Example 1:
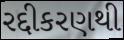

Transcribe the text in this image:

રદ્દીકરણથી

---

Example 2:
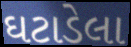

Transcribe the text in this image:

ઘટાડેલા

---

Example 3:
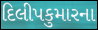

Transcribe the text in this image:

દિલીપકુમારના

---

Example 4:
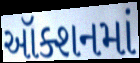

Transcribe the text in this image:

ઑક્શનમાં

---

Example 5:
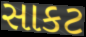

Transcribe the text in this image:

સાકટ